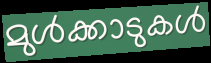
മുൾക്കാടുകൾ